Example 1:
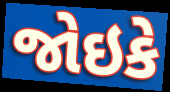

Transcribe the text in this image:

જોઇકે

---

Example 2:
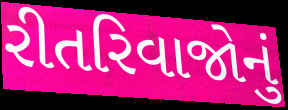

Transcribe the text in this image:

રીતરિવાજોનું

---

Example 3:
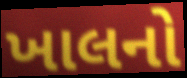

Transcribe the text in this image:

ખાલનો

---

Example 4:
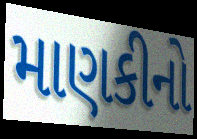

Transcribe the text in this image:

માણકીનો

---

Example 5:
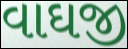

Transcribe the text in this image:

વાઘજી